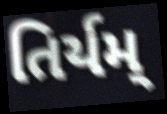
તિર્યમ્